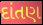
દાંતણ